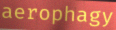
aerophagy